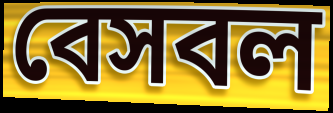
বেসবল